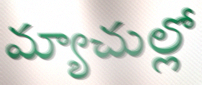
మ్యాచుల్లో